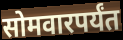
सोमवारपर्यंत